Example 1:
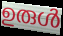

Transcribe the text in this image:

ഉരുൾ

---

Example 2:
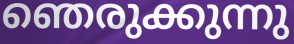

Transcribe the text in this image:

ഞെരുക്കുന്നു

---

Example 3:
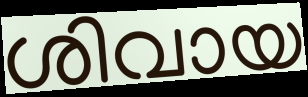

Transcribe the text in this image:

ശിവായ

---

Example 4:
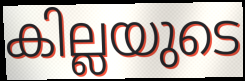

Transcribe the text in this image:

കില്ലയുടെ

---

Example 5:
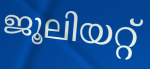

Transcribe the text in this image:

ജൂലിയറ്റ്